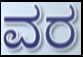
ವರ